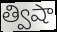
త్విషా